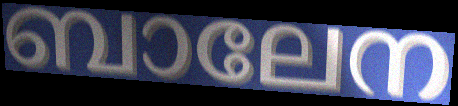
ബാലേന